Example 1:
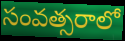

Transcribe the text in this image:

సంవత్సరాలో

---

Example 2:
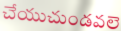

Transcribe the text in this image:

చేయుచుండవలె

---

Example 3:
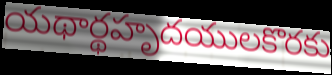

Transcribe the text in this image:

యథార్థహృదయులకొరకు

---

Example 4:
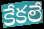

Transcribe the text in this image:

కేకలే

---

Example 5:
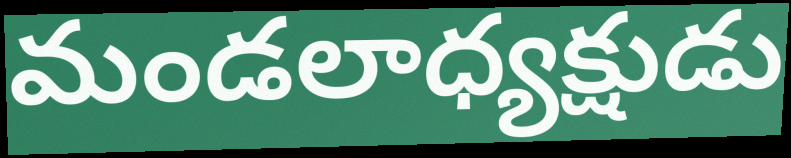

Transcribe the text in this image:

మండలాధ్యక్షుడు